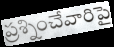
ప్రశ్నించేవారిపై